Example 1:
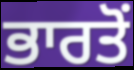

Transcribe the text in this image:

ਭਾਰਤੋਂ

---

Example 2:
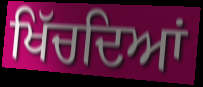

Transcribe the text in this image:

ਖਿੱਚਦਿਆਂ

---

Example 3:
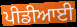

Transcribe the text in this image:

ਪੀਡੀਆਈ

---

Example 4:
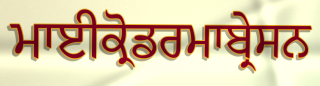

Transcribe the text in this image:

ਮਾਈਕ੍ਰੋਡਰਮਾਬ੍ਰੇਸਨ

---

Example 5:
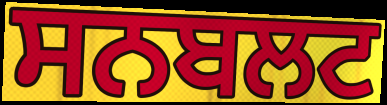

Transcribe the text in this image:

ਸਨਬਲਟ